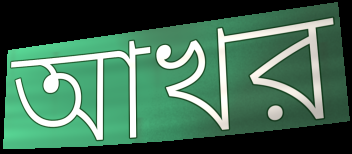
আখর